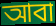
আবা